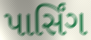
પાર્સિંગ